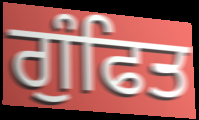
ਗੁੰਫਿਤ